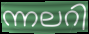
ന്നലറി